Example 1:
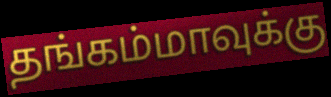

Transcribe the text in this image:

தங்கம்மாவுக்கு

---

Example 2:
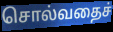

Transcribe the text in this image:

சொல்வதைச்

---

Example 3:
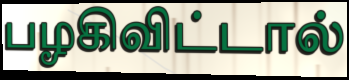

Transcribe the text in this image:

பழகிவிட்டால்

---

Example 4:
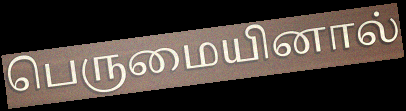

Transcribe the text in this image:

பெருமையினால்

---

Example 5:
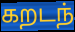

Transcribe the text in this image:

கறடந்